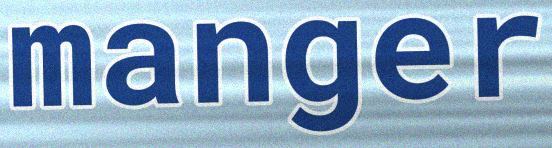
manger